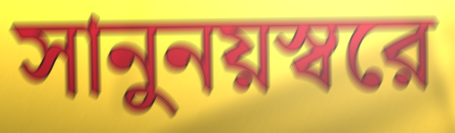
সানুনয়স্বরে